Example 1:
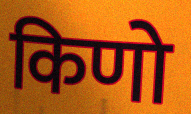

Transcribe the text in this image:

किणो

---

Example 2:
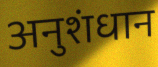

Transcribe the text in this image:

अनुशंधान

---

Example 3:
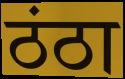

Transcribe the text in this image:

ठंठा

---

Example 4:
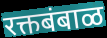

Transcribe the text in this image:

रक्तबंबाळ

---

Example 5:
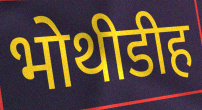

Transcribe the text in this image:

भोथीडीह